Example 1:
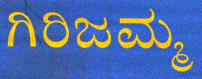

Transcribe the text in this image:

ಗಿರಿಜಮ್ಮ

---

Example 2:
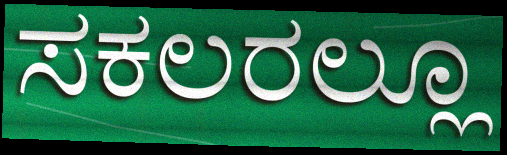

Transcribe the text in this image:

ಸಕಲರಲ್ಲೂ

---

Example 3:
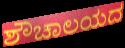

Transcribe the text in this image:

ಶೌಚಾಲಯದ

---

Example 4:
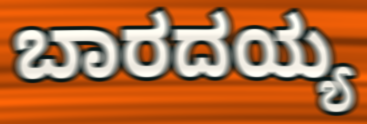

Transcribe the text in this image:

ಬಾರದಯ್ಯ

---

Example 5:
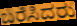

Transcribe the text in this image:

ಬರೆಸಿದರು